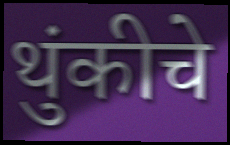
थुंकीचे